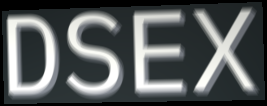
DSEX